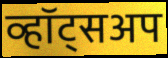
व्हॉट्सअप